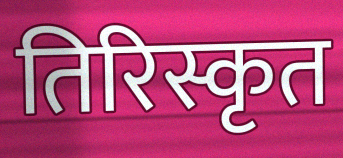
तिरिस्कृत